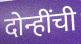
दोन्हींची